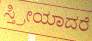
ಸ್ತ್ರೀಯಾದರೆ